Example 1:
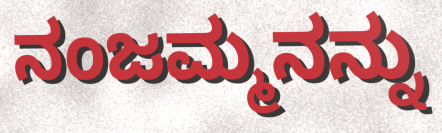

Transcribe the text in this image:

ನಂಜಮ್ಮನನ್ನು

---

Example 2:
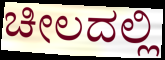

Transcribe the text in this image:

ಚೀಲದಲ್ಲಿ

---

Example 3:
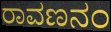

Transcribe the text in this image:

ರಾವಣನಂ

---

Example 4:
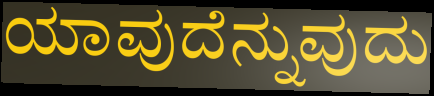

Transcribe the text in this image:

ಯಾವುದೆನ್ನುವುದು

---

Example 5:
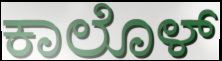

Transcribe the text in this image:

ಕಾಲೊಳ್